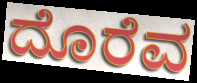
ದೊರೆವ